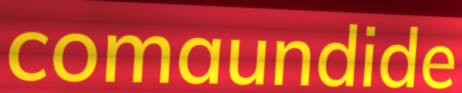
comaundide